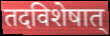
तदविशेषात्